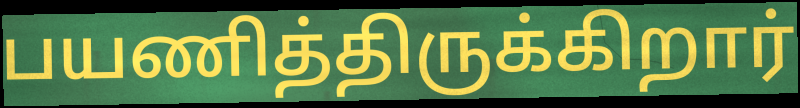
பயணித்திருக்கிறார்